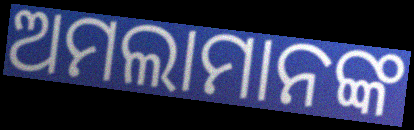
ଅମଲାମାନଙ୍କ